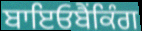
ਬਾਇਓਬੈਂਕਿੰਗ